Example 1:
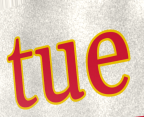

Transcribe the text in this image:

tue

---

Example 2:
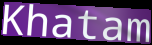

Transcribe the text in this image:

Khatam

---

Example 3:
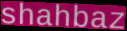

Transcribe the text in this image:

shahbaz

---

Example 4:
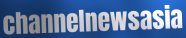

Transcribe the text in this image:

channelnewsasia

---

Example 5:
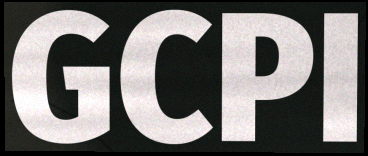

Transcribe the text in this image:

GCPI